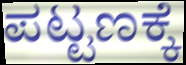
ಪಟ್ಟಣಕ್ಕೆ